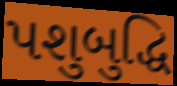
પશુબુદ્ધિ